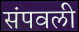
संपवली